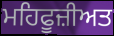
ਮਹਿਫੂਜ਼ੀਅਤ